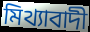
মিথ্যাবাদী